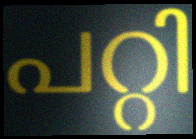
പറ്റി